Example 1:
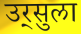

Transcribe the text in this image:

उर्सुला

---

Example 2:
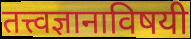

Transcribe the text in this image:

तत्त्वज्ञानाविषयी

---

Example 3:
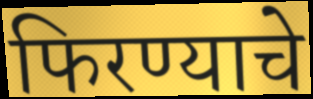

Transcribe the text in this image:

फिरण्याचे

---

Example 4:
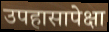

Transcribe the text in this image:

उपहासापेक्षा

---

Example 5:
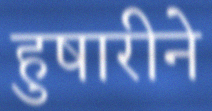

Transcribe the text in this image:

हुषारीने